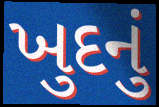
ખુદનું